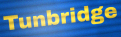
Tunbridge